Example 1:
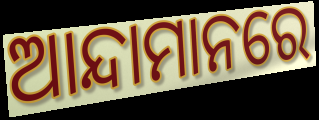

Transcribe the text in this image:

ଆନ୍ଦାମାନରେ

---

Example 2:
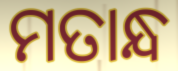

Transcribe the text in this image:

ମତାନ୍ଧ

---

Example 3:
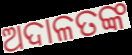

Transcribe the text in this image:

ଅଦାଳତଙ୍କ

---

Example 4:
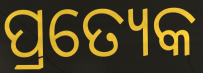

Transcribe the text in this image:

ପ୍ରତ୍ଯେକ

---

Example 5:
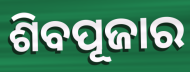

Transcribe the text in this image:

ଶିବପୂଜାର